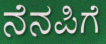
ನೆನಪಿಗೆ